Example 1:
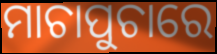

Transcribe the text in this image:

ମାଚାପୁଚାରେ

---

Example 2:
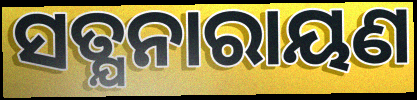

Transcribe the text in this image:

ସତ୍ଯନାରାୟଣ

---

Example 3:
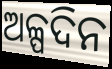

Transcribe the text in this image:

ଅଳ୍ପଦିନ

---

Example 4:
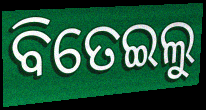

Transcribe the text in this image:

ବିତେଇଲୁ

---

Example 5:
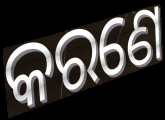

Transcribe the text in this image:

କରଣେ